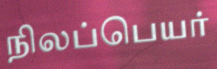
நிலப்பெயர்